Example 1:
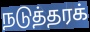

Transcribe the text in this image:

நடுத்தரக்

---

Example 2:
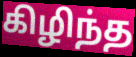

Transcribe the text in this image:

கிழிந்த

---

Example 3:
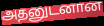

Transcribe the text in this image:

அதனுடனான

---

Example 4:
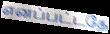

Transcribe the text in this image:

எனப்பட்டதே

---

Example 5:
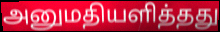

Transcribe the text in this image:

அனுமதியளித்தது